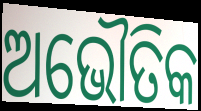
ଅଭୌତିକ